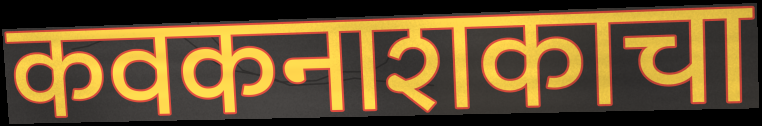
कवकनाशकाचा